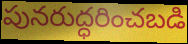
పునరుద్ధరించబడి